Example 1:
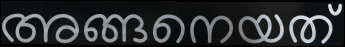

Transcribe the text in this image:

അങ്ങനെയത്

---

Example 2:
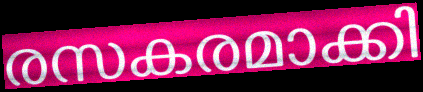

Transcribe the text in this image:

രസകരമാക്കി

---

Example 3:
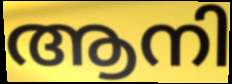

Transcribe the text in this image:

ആനി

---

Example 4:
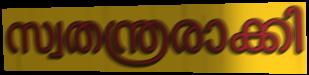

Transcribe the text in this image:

സ്വതന്ത്രരാക്കി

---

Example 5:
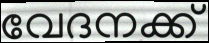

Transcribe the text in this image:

വേദനക്ക്